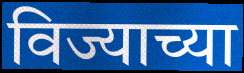
विज्याच्या